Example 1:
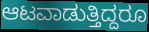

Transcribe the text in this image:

ಆಟವಾಡುತ್ತಿದ್ದರೂ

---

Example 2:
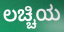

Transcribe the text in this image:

ಲಚ್ಚಿಯ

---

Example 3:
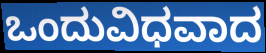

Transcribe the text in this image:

ಒಂದುವಿಧವಾದ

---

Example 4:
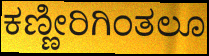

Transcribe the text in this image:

ಕಣ್ಣೀರಿಗಿಂತಲೂ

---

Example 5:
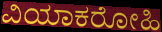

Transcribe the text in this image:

ವಿಯಾಕರೋಹಿ